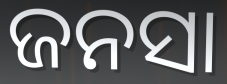
ଜନସା